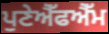
ਪੁਣੇਐੱਫਐੱਮ